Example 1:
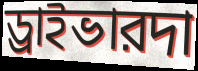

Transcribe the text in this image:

ড্রাইভারদা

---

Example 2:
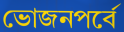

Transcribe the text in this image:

ভোজনপর্বে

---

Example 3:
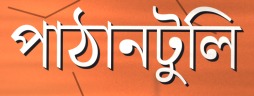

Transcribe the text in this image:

পাঠানটুলি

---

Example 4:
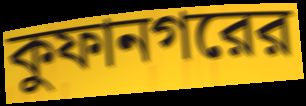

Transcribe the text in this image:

কুফানগরের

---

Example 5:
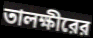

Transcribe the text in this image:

তালক্ষীরের